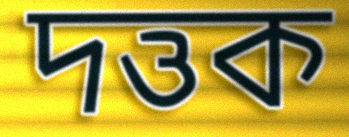
দত্তক